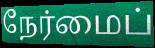
நேர்மைப்